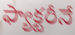
ఫ్యాక్టరీనే